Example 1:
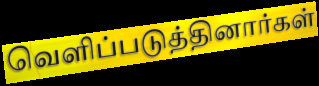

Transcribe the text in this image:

வெளிப்படுத்தினார்கள்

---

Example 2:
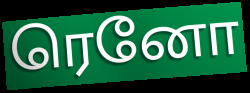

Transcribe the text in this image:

ரெனோ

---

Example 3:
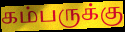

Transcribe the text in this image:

கம்பருக்கு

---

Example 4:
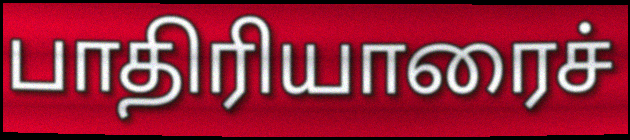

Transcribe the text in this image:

பாதிரியாரைச்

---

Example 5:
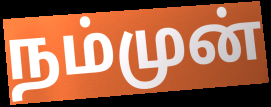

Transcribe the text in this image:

நம்முன்